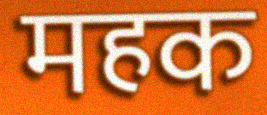
महक